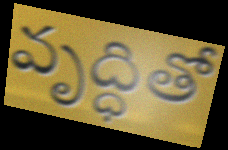
వృద్ధితో